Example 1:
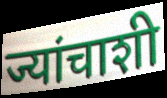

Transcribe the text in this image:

ज्यांचाशी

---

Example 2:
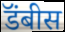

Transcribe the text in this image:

डॅंबीस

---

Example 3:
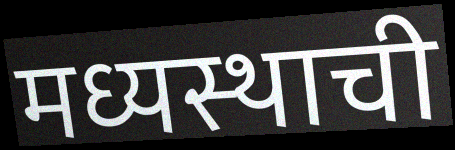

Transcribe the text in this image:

मध्यस्थाची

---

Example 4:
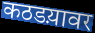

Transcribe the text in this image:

कठडय़ावर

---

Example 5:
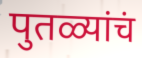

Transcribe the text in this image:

पुतळ्यांचं